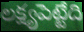
లక్ష్యపెట్టేది